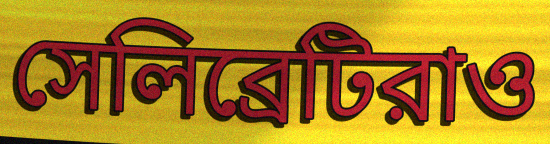
সেলিব্রেটিরাও